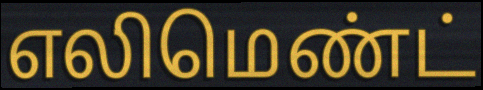
எலிமெண்ட்